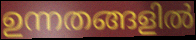
ഉന്നതങ്ങളിൽ